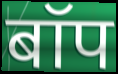
बॉप